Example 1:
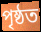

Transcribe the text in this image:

পৃষ্ঠত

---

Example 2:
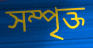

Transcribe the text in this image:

সম্পৃক্ত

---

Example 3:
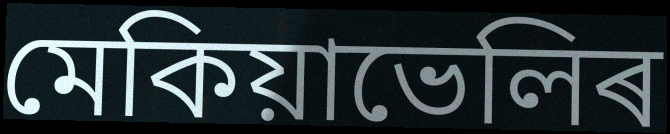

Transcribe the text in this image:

মেকিয়াভেলিৰ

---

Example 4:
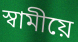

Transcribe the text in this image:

স্বামীয়ে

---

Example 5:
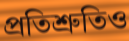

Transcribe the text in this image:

প্ৰতিশ্ৰুতিও